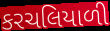
કરચલિયાળી